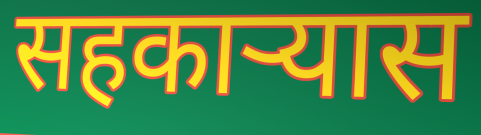
सहकार्‍यास